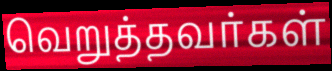
வெறுத்தவர்கள்